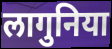
लागुनिया